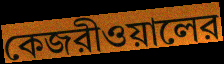
কেজরীওয়ালের